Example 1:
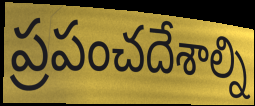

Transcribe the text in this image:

ప్రపంచదేశాల్ని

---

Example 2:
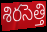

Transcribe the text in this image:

శిరసెత్తి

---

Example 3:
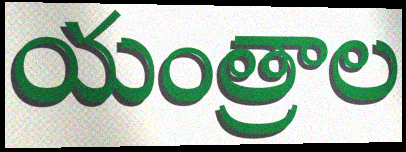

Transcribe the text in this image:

యంత్రాల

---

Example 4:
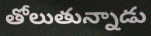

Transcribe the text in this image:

తోలుతున్నాడు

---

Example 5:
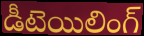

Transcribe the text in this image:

డీటెయిలింగ్